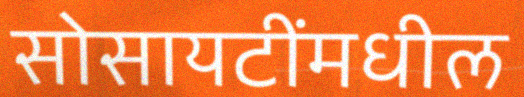
सोसायटींमधील